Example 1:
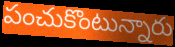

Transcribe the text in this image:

పంచుకొంటున్నారు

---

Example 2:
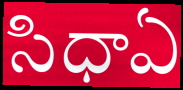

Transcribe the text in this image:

సిధాఏ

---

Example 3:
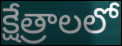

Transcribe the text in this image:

క్షేత్రాలలో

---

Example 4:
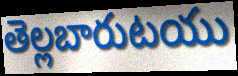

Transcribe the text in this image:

తెల్లబారుటయు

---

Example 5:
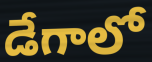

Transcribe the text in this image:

డేగాలో